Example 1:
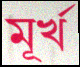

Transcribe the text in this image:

মূৰ্খ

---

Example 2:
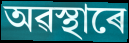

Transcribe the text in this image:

অৱস্থাৰে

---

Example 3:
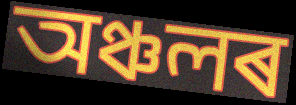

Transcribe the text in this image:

অঞ্চলৰ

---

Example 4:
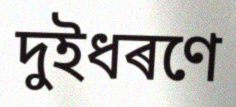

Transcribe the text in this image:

দুইধৰণে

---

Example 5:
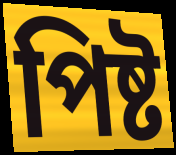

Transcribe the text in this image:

পিষ্ট